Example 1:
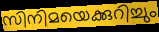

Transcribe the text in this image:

സിനിമയെക്കുറിച്ചും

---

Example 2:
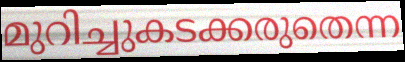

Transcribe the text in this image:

മുറിച്ചുകടക്കരുതെന്ന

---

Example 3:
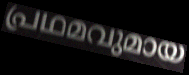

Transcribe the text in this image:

പ്രഥമവുമായ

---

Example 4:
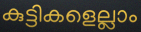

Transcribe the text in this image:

കുട്ടികളെല്ലാം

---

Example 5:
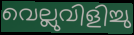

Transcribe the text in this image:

വെല്ലുവിളിച്ചു